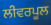
ਲੀਵਰਪੂਲ